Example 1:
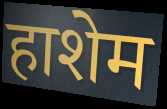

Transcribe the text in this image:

हाशेम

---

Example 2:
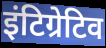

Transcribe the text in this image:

इंटिग्रेटिव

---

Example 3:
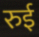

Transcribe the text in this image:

रुई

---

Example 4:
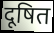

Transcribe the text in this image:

दूषित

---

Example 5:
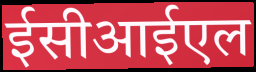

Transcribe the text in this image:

ईसीआईएल